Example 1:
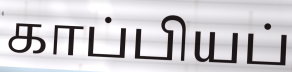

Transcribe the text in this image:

காப்பியப்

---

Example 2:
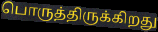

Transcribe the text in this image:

பொருத்திருக்கிறது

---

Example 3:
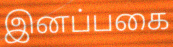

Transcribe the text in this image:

இனப்பகை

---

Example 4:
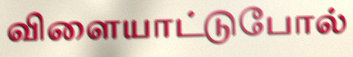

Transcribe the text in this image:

விளையாட்டுபோல்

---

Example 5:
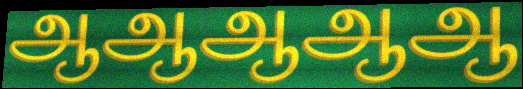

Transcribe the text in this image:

ஆஆஆஆஆ